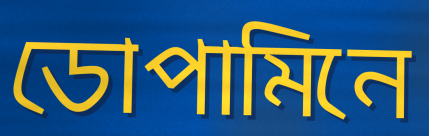
ডোপামিনে